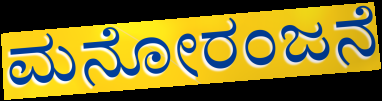
ಮನೋರಂಜನೆ